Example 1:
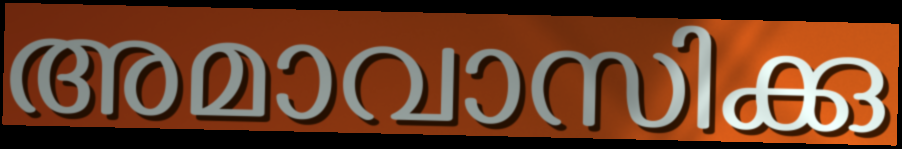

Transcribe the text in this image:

അമാവാസിക്കു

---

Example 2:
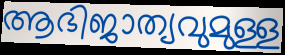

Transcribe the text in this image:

ആഭിജാത്യവുമുള്ള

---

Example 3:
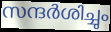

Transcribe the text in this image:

സന്ദർശിച്ചും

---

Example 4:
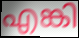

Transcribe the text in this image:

എങ്കി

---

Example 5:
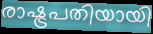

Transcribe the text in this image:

രാഷ്ട്രപതിയായി